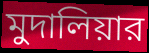
মুদালিয়ার